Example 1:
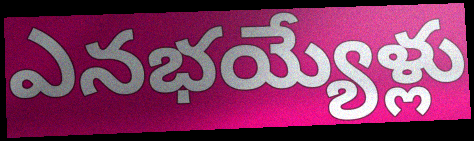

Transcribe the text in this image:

ఎనభయ్యేళ్లు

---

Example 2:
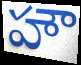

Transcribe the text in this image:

హౌ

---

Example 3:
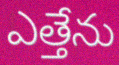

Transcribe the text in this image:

ఎత్తేను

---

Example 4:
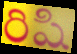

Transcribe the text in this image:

రిషి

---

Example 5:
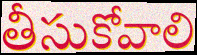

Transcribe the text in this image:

తీసుకోవాలి